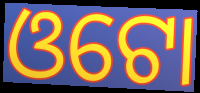
ଓଟୋ